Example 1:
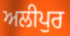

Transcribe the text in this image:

ਅਲੀਪੁਰ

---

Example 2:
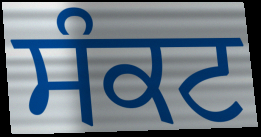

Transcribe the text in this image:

ਸੰਕਟ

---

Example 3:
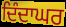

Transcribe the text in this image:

ਦਿੰਦਾਘਰ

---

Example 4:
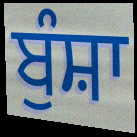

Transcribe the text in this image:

ਬੁੰਸ਼ਾ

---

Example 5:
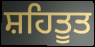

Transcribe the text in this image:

ਸ਼ਹਿਤੂਤ